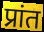
प्रांत